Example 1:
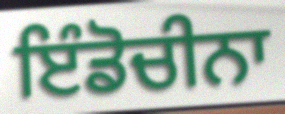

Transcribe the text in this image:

ਇੰਡੋਚੀਨਾ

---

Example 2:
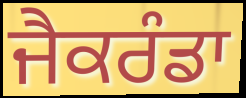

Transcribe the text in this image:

ਜੈਕਰੰਡਾ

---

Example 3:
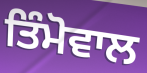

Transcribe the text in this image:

ਤਿੰਮੋਵਾਲ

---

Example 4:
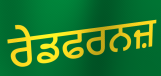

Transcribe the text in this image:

ਰੇਡਫਰਨਜ਼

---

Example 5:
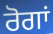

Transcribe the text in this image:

ਰੋਗਾਂ